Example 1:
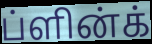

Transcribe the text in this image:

ப்ளின்க்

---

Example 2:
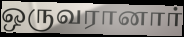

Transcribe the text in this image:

ஒருவரானார்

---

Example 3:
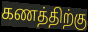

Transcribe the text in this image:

கணத்திற்கு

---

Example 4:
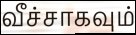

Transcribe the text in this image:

வீச்சாகவும்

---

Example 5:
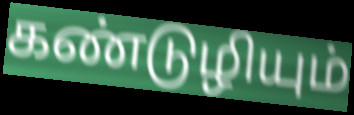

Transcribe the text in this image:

கண்டுழியும்